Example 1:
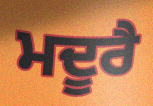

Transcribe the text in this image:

ਮਦੂਰੈ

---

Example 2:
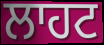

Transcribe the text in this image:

ਲਾਹਟ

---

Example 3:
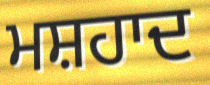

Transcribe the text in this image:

ਮਸ਼ਹਾਦ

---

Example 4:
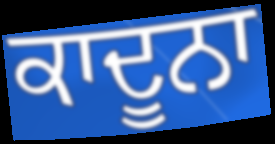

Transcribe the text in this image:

ਕਾਦੂਨਾ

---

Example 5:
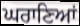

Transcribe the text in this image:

ਘਰਾਣਿਆਂ